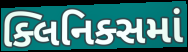
ક્લિનિક્સમાં